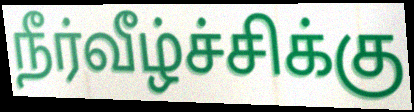
நீர்வீழ்ச்சிக்கு